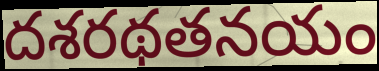
దశరథతనయం